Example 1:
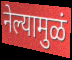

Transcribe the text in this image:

नेल्यामुळं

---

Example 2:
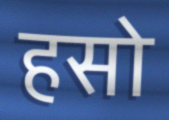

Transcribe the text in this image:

हसो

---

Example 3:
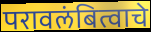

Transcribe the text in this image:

परावलंबित्वाचे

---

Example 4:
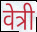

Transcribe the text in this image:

वेत्री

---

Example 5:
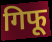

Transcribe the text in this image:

गिफू